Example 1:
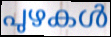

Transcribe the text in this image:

പുഴകൾ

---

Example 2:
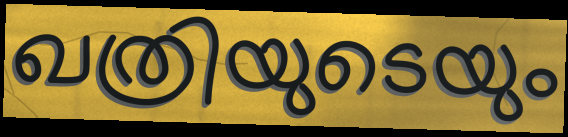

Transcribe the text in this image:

ഖത്രിയുടെയും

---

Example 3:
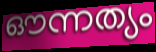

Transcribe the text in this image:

ഔന്നത്യം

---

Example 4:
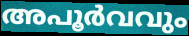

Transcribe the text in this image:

അപൂർവവും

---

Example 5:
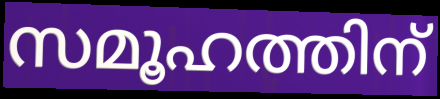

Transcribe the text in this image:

സമൂഹത്തിന്